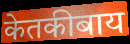
केतकीबाय